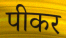
पीकर